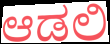
ಆಡಲಿ